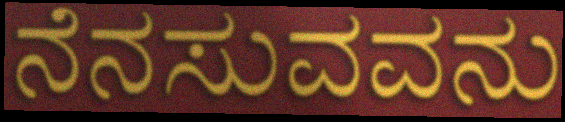
ನೆನಸುವವನು